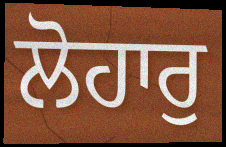
ਲੋਹਾਰੁ